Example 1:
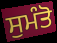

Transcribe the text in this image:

ਸੁਮੰਤੋ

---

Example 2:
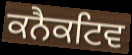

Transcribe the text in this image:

ਕਨੈਕਟਿਵ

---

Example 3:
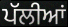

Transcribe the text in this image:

ਪੱਲੀਆਂ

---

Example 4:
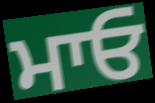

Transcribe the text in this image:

ਮਾਓ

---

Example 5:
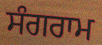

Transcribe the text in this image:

ਸੰਗਰਾਮ